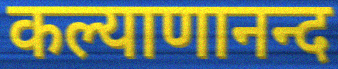
कल्याणानन्द